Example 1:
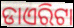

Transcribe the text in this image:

ଡାଏରିଟା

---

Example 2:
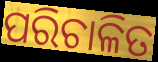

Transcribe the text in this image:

ପରିଚାଳିତ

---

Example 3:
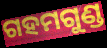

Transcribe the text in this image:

ଗହମଗୁଣ୍ଡ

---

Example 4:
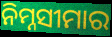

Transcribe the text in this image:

ନିମ୍ନସୀମାର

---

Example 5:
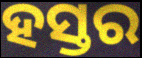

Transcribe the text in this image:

ହସ୍ତର